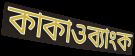
কাকাওব্যাংক